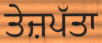
ਤੇਜ਼ਪੱਤਾ